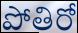
పోతిరో